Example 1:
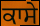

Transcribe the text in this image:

ਕਾਸੇ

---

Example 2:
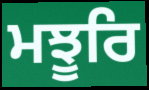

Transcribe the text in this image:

ਮਝੂਰਿ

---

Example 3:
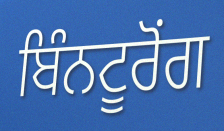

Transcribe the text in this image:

ਬਿੰਨਟੂਰੋਂਗ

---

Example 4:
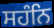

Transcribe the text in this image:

ਸਹੰਨਿ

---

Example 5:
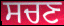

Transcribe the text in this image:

ਸਚਣ